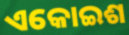
ଏକୋଇଶ